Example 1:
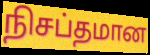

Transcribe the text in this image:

நிசப்தமான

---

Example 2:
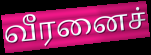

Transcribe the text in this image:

வீரனைச்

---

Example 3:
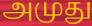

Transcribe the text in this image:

அமுது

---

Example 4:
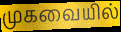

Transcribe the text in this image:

முகவையில்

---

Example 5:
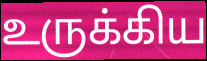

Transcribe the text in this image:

உருக்கிய